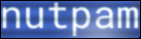
nutpam